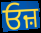
ਓਜ਼